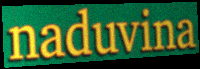
naduvina